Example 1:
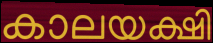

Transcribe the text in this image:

കാലയക്ഷി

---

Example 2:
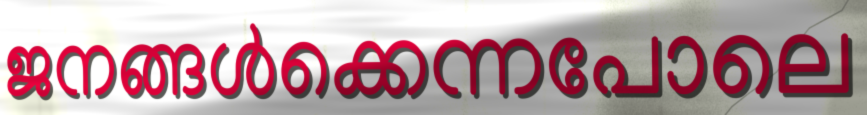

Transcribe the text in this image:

ജനങ്ങൾക്കെന്നപോലെ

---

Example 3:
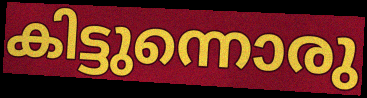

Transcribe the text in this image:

കിട്ടുന്നൊരു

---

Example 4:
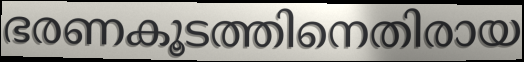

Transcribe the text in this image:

ഭരണകൂടത്തിനെതിരായ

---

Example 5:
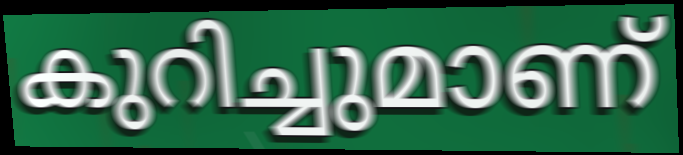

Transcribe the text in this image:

കുറിച്ചുമാണ്